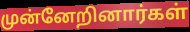
முன்னேறினார்கள்